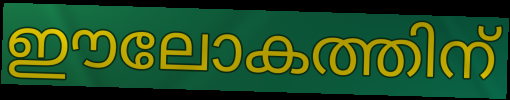
ഈലോകത്തിന്